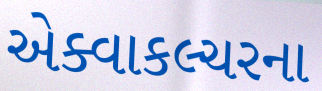
એક્વાકલ્ચરના